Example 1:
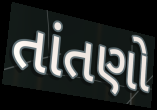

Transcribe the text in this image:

તાંતણો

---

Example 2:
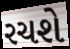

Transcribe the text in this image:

રચશે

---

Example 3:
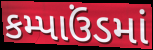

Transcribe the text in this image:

કમ્પાઉંડમાં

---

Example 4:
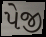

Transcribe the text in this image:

પેજી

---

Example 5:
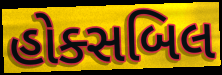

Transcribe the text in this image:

હોક્સબિલ